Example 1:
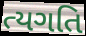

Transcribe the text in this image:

ત્યગતિ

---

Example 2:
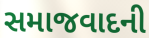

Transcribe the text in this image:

સમાજવાદની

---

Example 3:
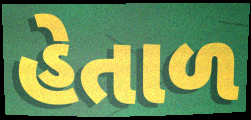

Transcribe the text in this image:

હેતાળ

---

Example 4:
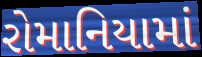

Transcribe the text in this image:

રોમાનિયામાં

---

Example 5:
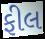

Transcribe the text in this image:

ફીલ